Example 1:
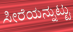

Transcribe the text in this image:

ಸೀರೆಯನ್ನುಟ್ಟು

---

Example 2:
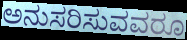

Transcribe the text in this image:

ಅನುಸರಿಸುವವರೂ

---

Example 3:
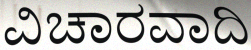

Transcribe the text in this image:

ವಿಚಾರವಾದಿ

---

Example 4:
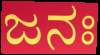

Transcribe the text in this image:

ಜನಃ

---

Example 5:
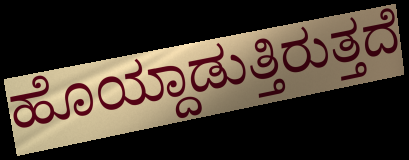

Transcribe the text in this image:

ಹೊಯ್ದಾಡುತ್ತಿರುತ್ತದೆ